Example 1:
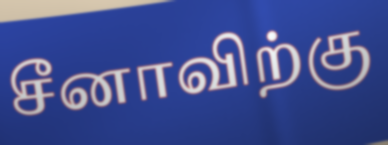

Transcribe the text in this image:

சீனாவிற்கு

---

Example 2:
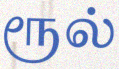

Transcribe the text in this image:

ரூல்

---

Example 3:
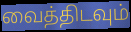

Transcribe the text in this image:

வைத்திடவும்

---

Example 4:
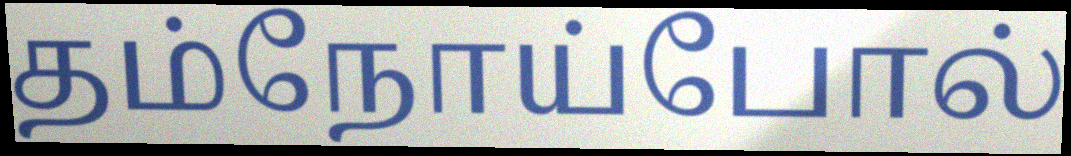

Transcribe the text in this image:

தம்நோய்போல்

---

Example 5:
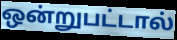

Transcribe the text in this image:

ஒன்றுபட்டால்